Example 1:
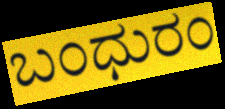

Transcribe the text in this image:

ಬಂಧುರಂ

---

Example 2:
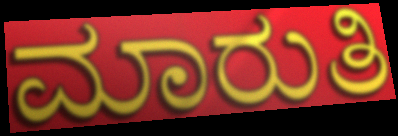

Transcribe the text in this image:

ಮಾರುತಿ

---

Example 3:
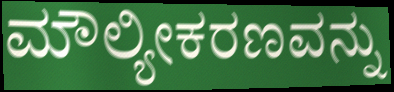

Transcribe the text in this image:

ಮೌಲ್ಯೀಕರಣವನ್ನು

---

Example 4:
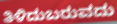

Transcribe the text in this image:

ತಿಳಿದುಬರುವದು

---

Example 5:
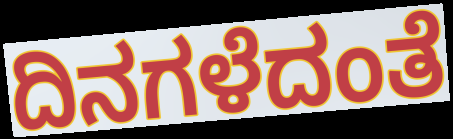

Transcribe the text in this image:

ದಿನಗಳೆದಂತೆ